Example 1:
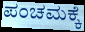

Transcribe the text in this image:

ಪಂಚಮಕ್ಕೆ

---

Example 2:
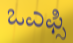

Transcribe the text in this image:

ಒಎಫ್ಸಿ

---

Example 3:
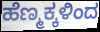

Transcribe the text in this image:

ಹೆಣ್ಮಕ್ಕಳಿಂದ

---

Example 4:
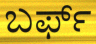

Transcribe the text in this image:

ಬರ್ಫ್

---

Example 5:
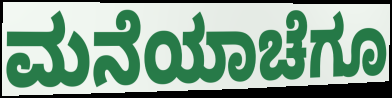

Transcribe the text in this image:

ಮನೆಯಾಚೆಗೂ